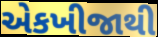
એકખીજાથી